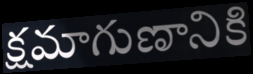
క్షమాగుణానికి